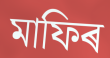
মাফিৰ